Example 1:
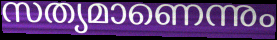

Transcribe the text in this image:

സത്യമാണെന്നും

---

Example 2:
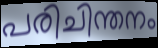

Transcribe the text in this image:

പരിചിന്തനം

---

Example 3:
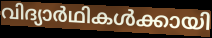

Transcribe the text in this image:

വിദ്യാർഥികൾക്കായി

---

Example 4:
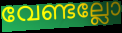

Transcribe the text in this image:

വേണ്ടല്ലോ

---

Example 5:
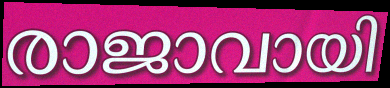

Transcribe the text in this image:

രാജാവായി